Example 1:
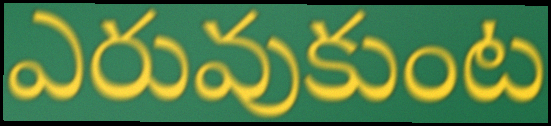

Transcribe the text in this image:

ఎరువుకుంట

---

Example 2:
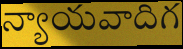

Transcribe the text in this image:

న్యాయవాదిగ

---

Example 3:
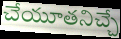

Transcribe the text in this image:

చేయూతనిచ్చే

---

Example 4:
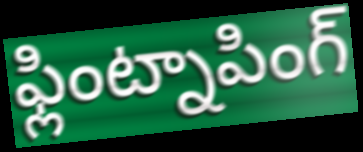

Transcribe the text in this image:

ఫ్లింట్నాపింగ్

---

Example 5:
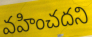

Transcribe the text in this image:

వహించదని